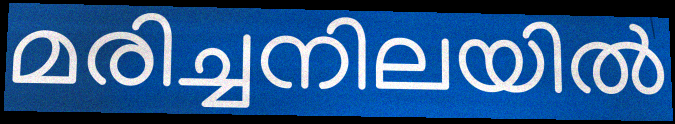
മരിച്ചനിലയിൽ